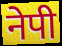
नेपी